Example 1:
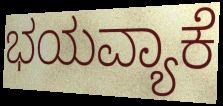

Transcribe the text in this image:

ಭಯವ್ಯಾಕೆ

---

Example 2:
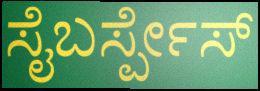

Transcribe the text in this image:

ಸೈಬರ್ಸ್ಪೇಸ್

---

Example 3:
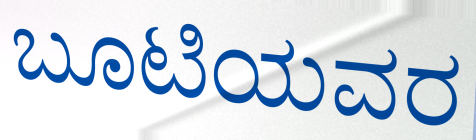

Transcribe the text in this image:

ಬೂಟಿಯವರ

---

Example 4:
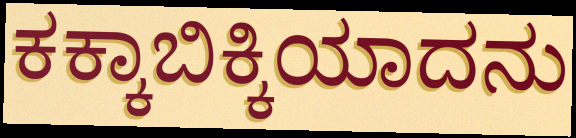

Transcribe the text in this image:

ಕಕ್ಕಾಬಿಕ್ಕಿಯಾದನು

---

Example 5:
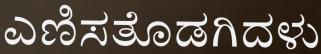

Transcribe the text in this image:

ಎಣಿಸತೊಡಗಿದಳು